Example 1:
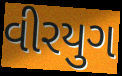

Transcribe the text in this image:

વીરયુગ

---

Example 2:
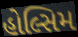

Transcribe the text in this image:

હોલ્સિમ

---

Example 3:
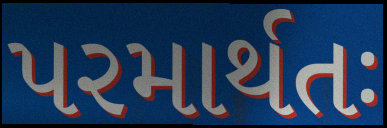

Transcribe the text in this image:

પરમાર્થતઃ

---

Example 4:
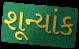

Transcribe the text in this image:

શૂન્યાંક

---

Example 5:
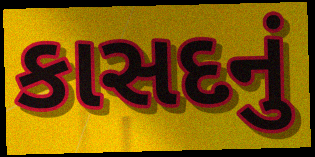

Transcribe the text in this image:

કાસદનું